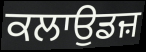
ਕਲਾਉਡਜ਼